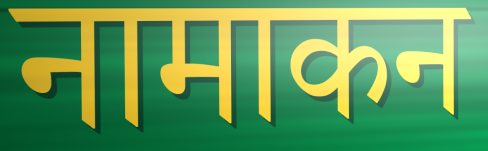
नामाकन